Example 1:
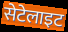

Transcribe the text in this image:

सेटेलाइट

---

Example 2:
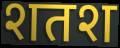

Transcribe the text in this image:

शतश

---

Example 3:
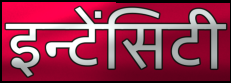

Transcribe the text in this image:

इन्टेंसिटी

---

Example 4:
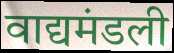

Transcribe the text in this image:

वाद्यमंडली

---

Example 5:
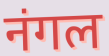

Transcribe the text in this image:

नंगल